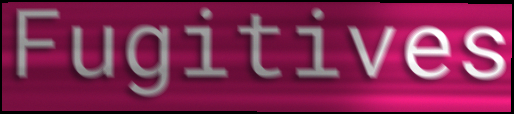
Fugitives